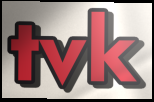
tvk